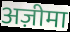
अज़ीमा